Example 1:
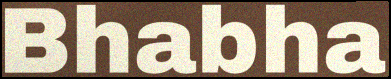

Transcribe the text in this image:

Bhabha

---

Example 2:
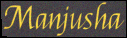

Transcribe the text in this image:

Manjusha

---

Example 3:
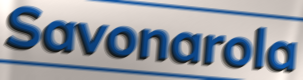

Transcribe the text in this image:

Savonarola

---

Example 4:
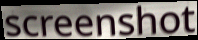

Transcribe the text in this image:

screenshot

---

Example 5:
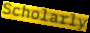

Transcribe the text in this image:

Scholarly